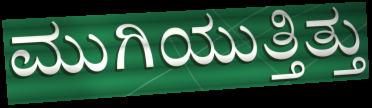
ಮುಗಿಯುತ್ತಿತ್ತು